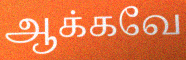
ஆக்கவே